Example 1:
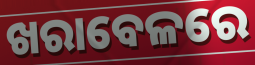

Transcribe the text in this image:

ଖରାବେଳରେ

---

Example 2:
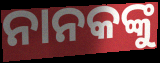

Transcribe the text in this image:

ନାନକଙ୍କୁ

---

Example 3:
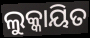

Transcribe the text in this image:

ଲୁକ୍କାୟିତ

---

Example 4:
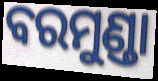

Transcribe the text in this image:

ବରମୁଣ୍ଡା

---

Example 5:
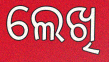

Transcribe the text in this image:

ଲେଖି